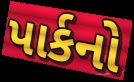
પાર્કનો